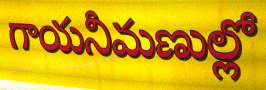
గాయనీమణుల్లో